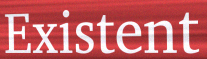
Existent